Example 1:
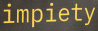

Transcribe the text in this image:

impiety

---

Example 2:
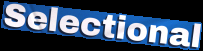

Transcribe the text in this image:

Selectional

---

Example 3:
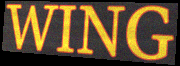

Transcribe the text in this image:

WING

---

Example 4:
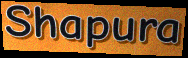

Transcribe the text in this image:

Shapura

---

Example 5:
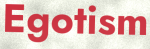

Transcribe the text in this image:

Egotism